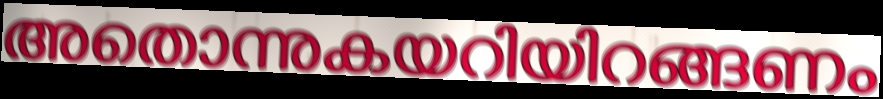
അതൊന്നുകയറിയിറങ്ങണം